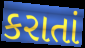
કરાતાં